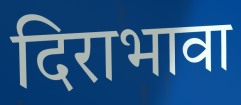
दिराभावा